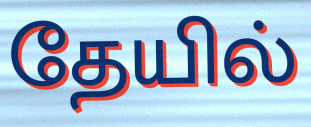
தேயில்